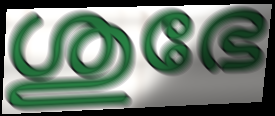
ശുഭേ